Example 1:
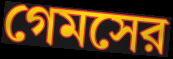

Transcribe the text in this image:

গেমসের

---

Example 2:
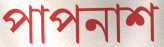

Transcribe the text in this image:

পাপনাশ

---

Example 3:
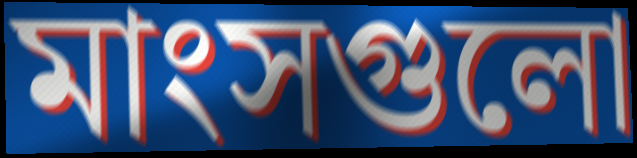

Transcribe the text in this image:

মাংসগুলো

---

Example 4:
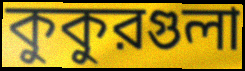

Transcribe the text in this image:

কুকুরগুলা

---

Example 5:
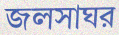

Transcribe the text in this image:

জলসাঘর